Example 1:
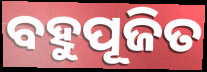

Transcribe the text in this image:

ବହୁପୂଜିତ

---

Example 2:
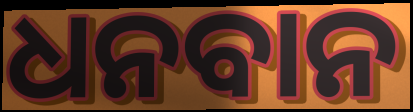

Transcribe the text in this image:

ଧନବାନ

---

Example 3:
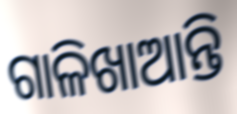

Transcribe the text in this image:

ଗାଳିଖାଆନ୍ତି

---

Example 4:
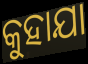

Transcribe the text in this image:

କୁହାଯା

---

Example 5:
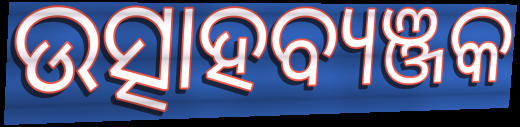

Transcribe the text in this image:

ଉତ୍ସାହବ୍ୟଞ୍ଜକ